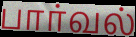
பார்வல்